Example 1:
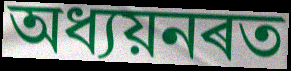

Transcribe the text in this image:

অধ্যয়নৰত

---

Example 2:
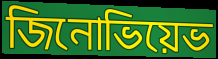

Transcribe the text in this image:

জিনোভিয়েভ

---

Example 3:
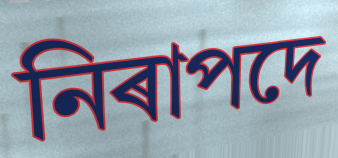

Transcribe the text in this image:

নিৰাপদে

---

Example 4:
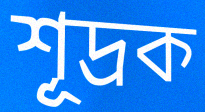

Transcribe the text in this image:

শূদ্ৰক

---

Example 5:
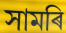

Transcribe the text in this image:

সামৰি